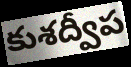
కుశద్వీప